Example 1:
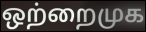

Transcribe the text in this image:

ஒற்றைமுக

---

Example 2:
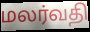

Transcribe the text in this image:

மலர்வதி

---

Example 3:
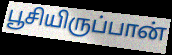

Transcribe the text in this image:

பூசியிருப்பான்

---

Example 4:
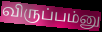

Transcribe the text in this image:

விருப்பம்னு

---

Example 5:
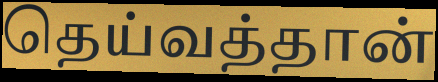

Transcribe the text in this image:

தெய்வத்தான்